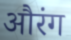
औरंग